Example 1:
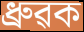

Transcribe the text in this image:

ধ্ৰুৱক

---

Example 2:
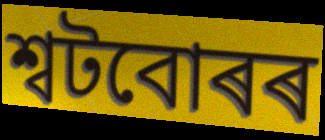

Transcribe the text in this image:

শ্বটবোৰৰ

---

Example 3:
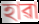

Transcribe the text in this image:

হাৱা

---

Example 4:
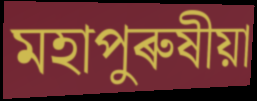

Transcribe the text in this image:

মহাপুৰুষীয়া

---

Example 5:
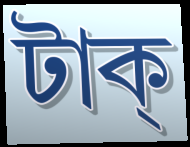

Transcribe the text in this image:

টাক্